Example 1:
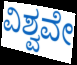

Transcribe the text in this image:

ವಿಶ್ವವೇ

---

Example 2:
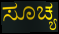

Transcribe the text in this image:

ಸೂಚ್ಯ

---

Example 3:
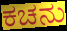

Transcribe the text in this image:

ಕಚನು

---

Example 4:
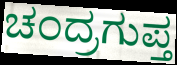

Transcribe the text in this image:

ಚಂದ್ರಗುಪ್ತ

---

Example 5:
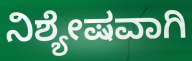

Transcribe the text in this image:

ನಿಶ್ಯೇಷವಾಗಿ